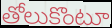
తోలుకొంటూ